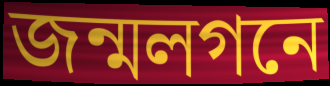
জন্মলগনে